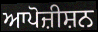
ਆਪੋਜ਼ੀਸ਼ਨ